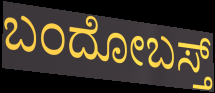
ಬಂದೋಬಸ್ತ್